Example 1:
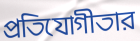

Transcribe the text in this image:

প্রতিযোগীতার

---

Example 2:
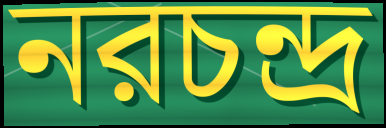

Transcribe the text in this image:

নরচন্দ্র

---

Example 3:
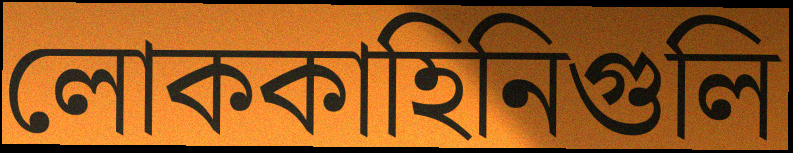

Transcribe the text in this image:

লোককাহিনিগুলি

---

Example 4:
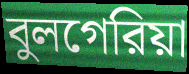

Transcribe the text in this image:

বুলগেরিয়া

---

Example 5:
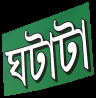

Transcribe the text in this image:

ঘটাটা